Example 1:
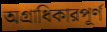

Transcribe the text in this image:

অগ্রাধিকারপূর্ণ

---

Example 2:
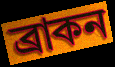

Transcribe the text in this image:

ব্রাকন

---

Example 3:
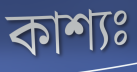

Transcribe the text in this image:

কাশ্যঃ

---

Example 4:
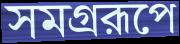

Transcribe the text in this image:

সমগ্ররূপে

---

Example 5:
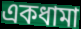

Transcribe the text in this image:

একধামা